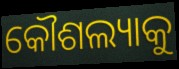
କୌଶଲ୍ୟାକୁ